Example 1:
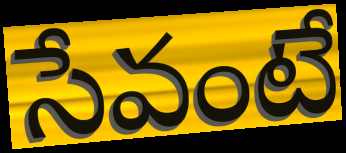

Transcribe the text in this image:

సేవంటే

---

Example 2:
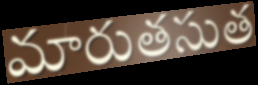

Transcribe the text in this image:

మారుతసుత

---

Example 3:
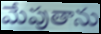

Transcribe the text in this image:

మేపుతాను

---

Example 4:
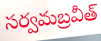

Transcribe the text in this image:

సర్వమబ్రవీత్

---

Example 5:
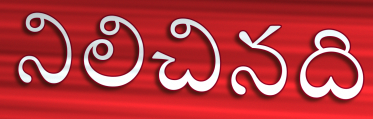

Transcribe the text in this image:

నిలిచినది